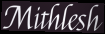
Mithlesh